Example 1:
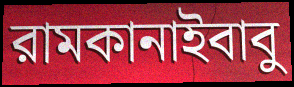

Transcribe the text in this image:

রামকানাইবাবু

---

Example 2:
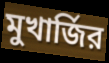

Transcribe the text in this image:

মুখার্জির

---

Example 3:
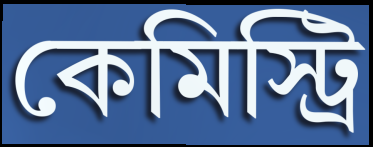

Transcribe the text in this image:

কেমিস্ট্রি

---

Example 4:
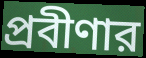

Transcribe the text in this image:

প্রবীণার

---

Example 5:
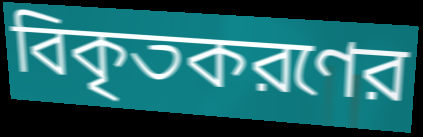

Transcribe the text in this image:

বিকৃতকরণের